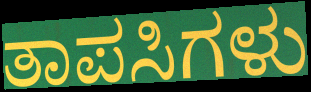
ತಾಪಸಿಗಳು